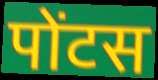
पोंटस